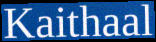
Kaithaal